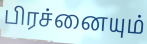
பிரச்னையும்